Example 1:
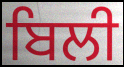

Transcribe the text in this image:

ਬਿਲੀ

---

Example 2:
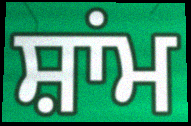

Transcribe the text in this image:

ਸ਼ਾਂਮ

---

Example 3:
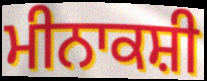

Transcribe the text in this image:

ਮੀਨਾਕਸ਼ੀ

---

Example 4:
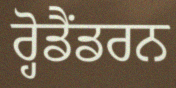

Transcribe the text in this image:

ਰ੍ਹੋਡੈਂਡਰਨ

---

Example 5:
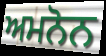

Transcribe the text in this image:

ਅਮਨੋਨ